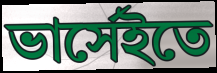
ভার্সেইতে